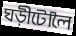
ঘড়ীটোলৈ